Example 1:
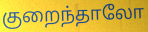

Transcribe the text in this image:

குறைந்தாலோ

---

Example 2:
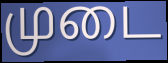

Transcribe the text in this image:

முடை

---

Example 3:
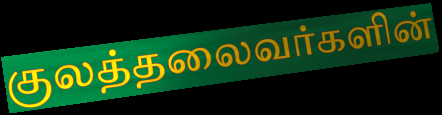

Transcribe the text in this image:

குலத்தலைவர்களின்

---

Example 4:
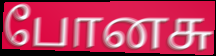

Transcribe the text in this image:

போனசு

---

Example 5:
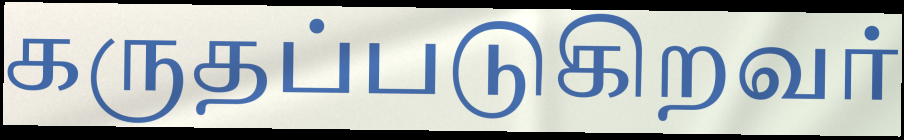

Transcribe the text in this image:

கருதப்படுகிறவர்